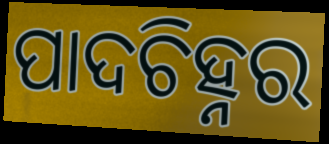
ପାଦଚିହ୍ନର